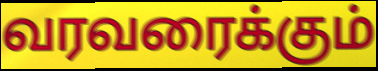
வரவரைக்கும்